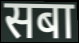
सबा